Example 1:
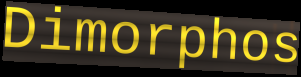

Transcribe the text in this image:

Dimorphos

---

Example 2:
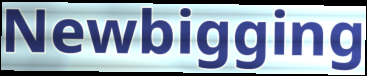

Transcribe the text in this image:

Newbigging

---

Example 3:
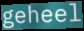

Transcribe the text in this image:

geheel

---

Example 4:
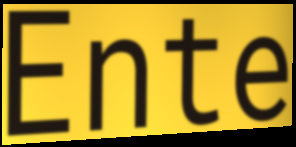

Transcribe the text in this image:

Ente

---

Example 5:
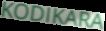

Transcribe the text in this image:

KODIKARA